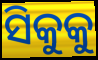
ସିକୁକୁ